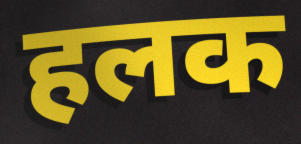
हलक